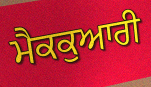
ਮੈਕਕੁਆਰੀ